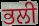
ਭਲੀ